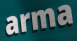
arma